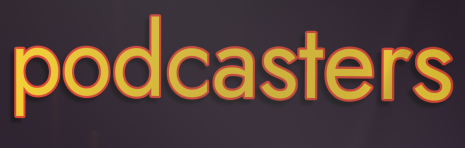
podcasters